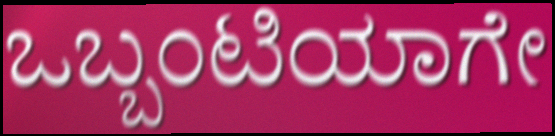
ಒಬ್ಬಂಟಿಯಾಗೇ